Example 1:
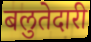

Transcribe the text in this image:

बलुतेदारी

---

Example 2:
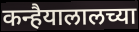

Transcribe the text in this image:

कन्हैयालालच्या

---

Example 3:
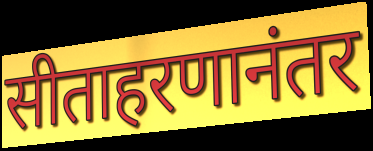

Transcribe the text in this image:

सीताहरणानंतर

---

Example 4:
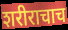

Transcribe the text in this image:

शरीराचाच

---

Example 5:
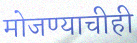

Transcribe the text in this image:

मोजण्याचीही